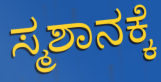
ಸ್ಮಶಾನಕ್ಕೆ